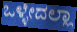
ಒಳ್ಳೇದಲ್ಲಾ